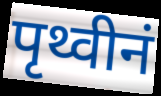
पृथ्वीनं